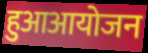
हुआआयोजन